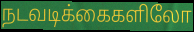
நடவடிக்கைகளிலோ